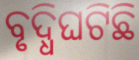
ବୃଦ୍ଧିଘଟିଛି